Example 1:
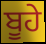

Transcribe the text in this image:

ਬੂਹੇ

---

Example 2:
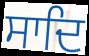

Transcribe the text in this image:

ਸਾਦਿ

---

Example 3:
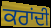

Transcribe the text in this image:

ਕਰਾਂਦੀ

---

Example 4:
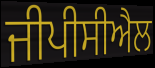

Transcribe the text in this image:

ਜੀਪੀਸੀਐਲ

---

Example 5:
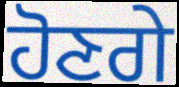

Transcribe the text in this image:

ਹੋਣਗੇ